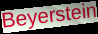
Beyerstein